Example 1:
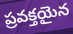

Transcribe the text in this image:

ప్రవక్తయైన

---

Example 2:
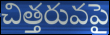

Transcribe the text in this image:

చిత్తరువపై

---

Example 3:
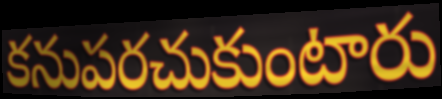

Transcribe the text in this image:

కనుపరచుకుంటారు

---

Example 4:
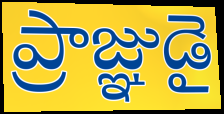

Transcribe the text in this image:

ప్రాజ్ఞుడై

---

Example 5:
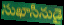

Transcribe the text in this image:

సుఖాసీనుడై